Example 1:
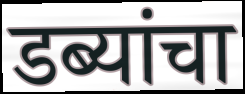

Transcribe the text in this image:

डब्यांचा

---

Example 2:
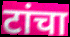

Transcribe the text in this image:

टांचा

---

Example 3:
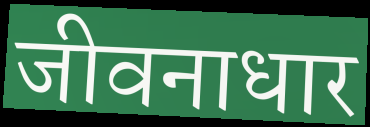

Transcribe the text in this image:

जीवनाधार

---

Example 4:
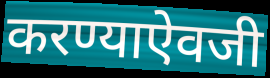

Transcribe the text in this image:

करण्याऐवजी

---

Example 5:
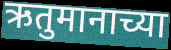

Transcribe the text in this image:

ऋतुमानाच्या